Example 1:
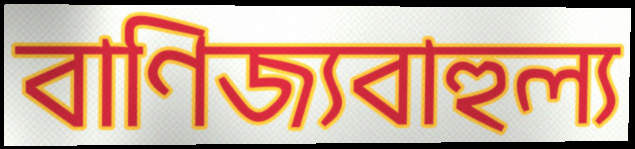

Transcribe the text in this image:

বাণিজ্যবাহুল্য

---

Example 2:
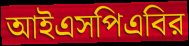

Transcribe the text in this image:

আইএসপিএবির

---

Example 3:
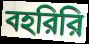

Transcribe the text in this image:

বহরিরি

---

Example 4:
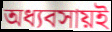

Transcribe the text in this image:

অধ্যবসায়ই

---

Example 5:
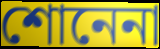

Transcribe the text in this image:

শোনেনা